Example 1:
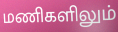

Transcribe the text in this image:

மணிகளிலும்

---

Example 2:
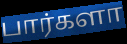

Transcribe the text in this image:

பார்களா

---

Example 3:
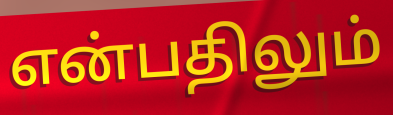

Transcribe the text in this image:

என்பதிலும்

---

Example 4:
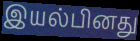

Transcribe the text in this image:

இயல்பினது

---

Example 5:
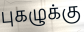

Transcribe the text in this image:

புகழுக்கு